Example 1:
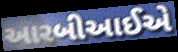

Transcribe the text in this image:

આરબીઆઈએ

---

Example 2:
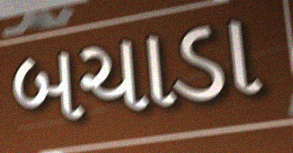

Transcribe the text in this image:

બચાડા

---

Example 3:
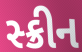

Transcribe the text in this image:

સ્ક્રીન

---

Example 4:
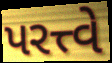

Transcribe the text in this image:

પરત્ત્વે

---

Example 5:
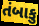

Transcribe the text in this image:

તંબાકુ